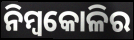
ନିମ୍ବକୋଳିର